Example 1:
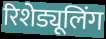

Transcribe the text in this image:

रिशेड्यूलिंग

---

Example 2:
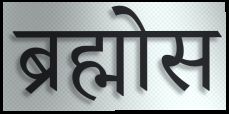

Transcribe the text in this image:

ब्रह्मोस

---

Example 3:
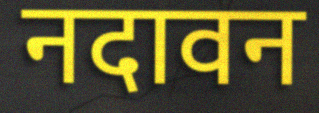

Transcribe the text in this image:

नदावन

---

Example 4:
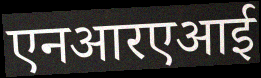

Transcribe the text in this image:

एनआरएआई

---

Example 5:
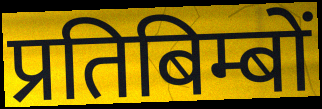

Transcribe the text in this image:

प्रतिबिम्बों